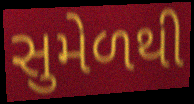
સુમેળથી